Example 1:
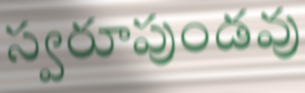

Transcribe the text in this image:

స్వరూపుండవు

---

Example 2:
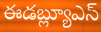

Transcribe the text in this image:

ఈడబ్ల్యూఎస్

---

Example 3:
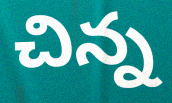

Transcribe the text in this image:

చిన్న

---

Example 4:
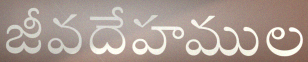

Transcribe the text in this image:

జీవదేహముల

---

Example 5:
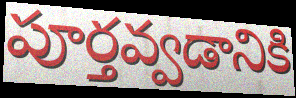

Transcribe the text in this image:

పూర్తవ్వడానికి